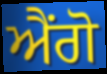
ਐਂਗੋ